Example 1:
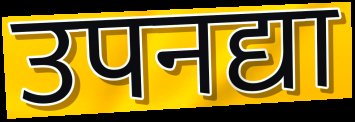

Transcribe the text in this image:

उपनद्या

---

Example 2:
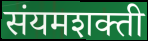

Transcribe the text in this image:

संयमशक्ती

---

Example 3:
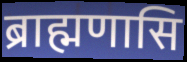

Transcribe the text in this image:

ब्राह्मणासि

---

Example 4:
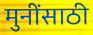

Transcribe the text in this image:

मुनींसाठी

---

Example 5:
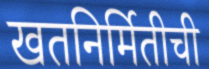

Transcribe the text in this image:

खतनिर्मितीची